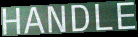
HANDLE